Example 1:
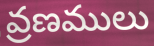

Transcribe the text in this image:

వ్రణములు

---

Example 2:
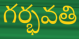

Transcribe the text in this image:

గర్భవతి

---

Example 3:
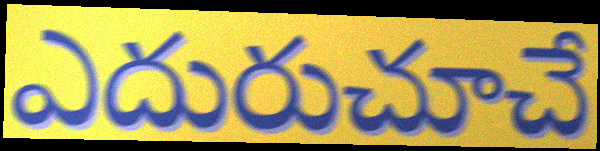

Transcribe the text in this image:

ఎదురుచూచే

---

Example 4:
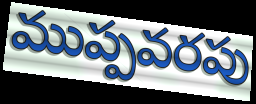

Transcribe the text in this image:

ముప్పవరపు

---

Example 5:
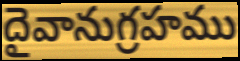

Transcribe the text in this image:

దైవానుగ్రహము